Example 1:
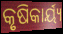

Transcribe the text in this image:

କୃଷିକାର୍ୟ୍ୟ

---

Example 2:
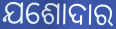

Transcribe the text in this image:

ଯଶୋଦାର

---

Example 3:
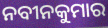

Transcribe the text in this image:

ନବୀନକୁମାର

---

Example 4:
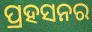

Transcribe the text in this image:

ପ୍ରହସନର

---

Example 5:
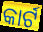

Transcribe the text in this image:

କାର୍ଟ